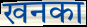
खनका